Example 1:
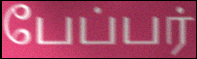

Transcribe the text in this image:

பேப்பர்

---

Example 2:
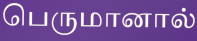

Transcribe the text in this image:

பெருமானால்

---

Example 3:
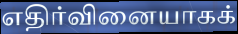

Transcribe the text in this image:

எதிர்வினையாகக்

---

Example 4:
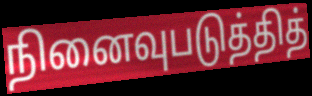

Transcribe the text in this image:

நினைவுபடுத்தித்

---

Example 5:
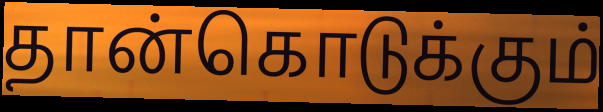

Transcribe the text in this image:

தான்கொடுக்கும்